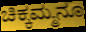
ಚಿಕ್ಕಮ್ಮನೂ